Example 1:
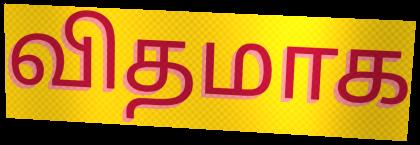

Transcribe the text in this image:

விதமாக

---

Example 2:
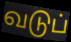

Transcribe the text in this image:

வடுப்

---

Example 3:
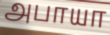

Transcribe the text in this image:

அபாயா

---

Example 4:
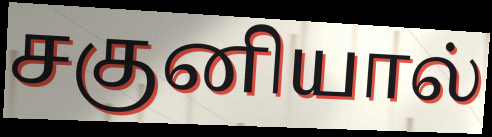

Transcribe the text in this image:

சகுனியால்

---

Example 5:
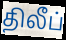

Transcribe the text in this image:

திலீப்